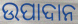
ଉପାଦାନ